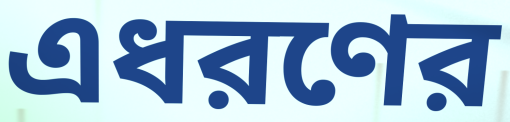
এধরণের